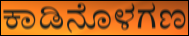
ಕಾಡಿನೊಳಗಣ